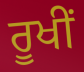
ਰੂਖੀਂ